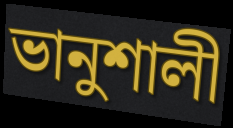
ভানুশালী